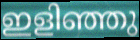
ഇളിഞ്ഞു